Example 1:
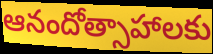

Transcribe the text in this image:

ఆనందోత్సాహాలకు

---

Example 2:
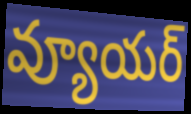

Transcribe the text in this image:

వ్యూయర్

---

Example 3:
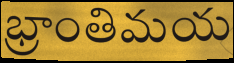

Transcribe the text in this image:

భ్రాంతిమయ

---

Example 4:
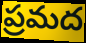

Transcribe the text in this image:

ప్రమద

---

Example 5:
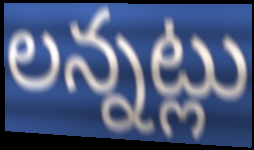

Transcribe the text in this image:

లన్నట్లు